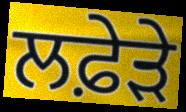
ਲਫ਼ੇੜੇ